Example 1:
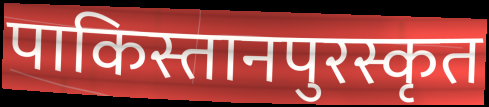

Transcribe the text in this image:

पाकिस्तानपुरस्कृत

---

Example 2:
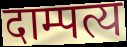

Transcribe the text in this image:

दाम्पत्य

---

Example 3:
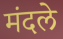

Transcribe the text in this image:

मंदले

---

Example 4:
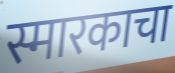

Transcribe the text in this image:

स्मारकाचा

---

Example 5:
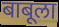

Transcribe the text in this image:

बाबूला